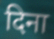
दिना